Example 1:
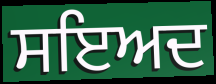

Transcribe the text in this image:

ਸਇਅਦ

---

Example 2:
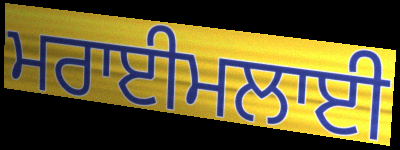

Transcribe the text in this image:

ਮਰਾਈਮਲਾਈ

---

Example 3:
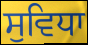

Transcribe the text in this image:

ਸੁਵਿਧਾ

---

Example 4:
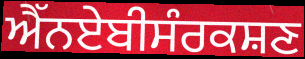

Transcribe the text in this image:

ਐੱਨਏਬੀਸੰਰਕਸ਼ਣ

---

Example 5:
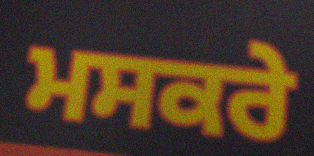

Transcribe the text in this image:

ਮਸਕਰੇ